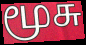
மூசு